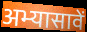
अभ्यासावें